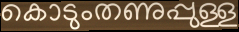
കൊടുംതണുപ്പുള്ള